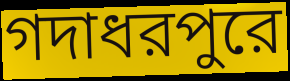
গদাধরপুরে